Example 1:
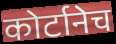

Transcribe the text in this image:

कोर्टानेच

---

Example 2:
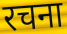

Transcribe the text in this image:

रचना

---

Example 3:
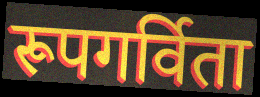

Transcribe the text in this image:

रूपगर्विता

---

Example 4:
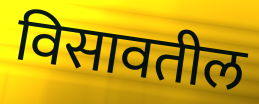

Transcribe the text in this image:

विसावतील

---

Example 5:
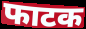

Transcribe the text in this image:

फाटक